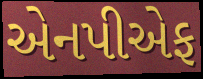
એનપીએફ